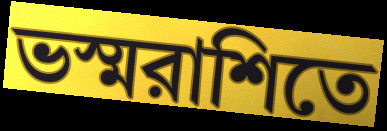
ভস্মরাশিতে